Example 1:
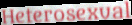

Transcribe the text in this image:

Heterosexual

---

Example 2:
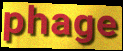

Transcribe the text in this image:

phage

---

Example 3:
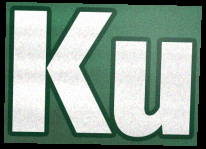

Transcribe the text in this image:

Ku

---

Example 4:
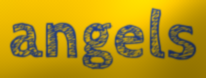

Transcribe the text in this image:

angels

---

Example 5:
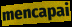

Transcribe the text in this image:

mencapai